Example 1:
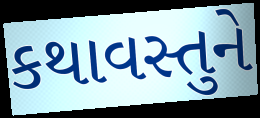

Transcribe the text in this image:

કથાવસ્તુને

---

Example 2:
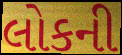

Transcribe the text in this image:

લોકની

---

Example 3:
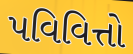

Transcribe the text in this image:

પવિવિત્તો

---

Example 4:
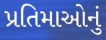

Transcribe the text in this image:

પ્રતિમાઓનું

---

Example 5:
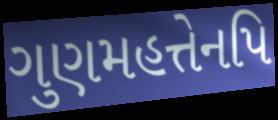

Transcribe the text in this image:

ગુણમહત્તેનપિ